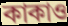
কাকাও